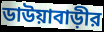
ডাউয়াবাড়ীর